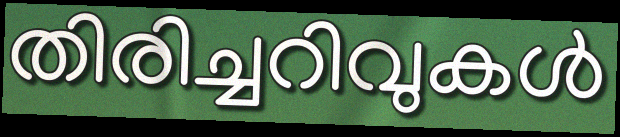
തിരിച്ചറിവുകൾ